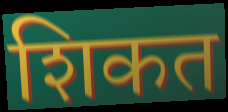
शिकत